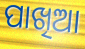
ପାଖିଆ